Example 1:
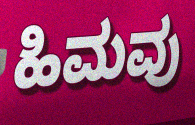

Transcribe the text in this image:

ಹಿಮವು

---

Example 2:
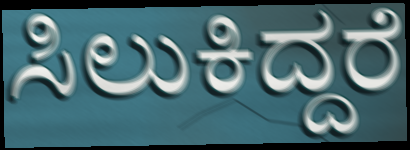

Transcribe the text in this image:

ಸಿಲುಕಿದ್ದರೆ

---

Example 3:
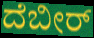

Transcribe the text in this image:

ದೆಬೀರ್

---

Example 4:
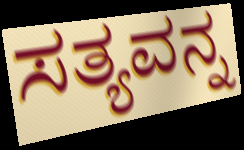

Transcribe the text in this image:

ಸತ್ಯವನ್ನ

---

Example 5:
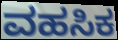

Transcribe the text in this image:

ವಹಸಿಕ